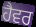
ਹੈਵਰ